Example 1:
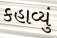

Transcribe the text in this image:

કહાવ્યું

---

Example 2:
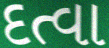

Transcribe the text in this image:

દત્વા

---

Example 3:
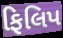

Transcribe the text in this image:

ફિલિપ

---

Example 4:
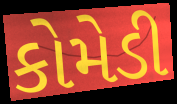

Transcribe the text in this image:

કોમેડી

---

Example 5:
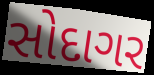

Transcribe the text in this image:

સોદાગર